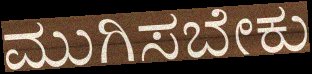
ಮುಗಿಸಬೇಕು